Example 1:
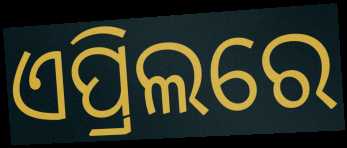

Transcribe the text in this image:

ଏପ୍ରିଲରେ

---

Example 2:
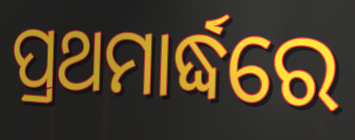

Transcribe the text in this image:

ପ୍ରଥମାର୍ଦ୍ଧରେ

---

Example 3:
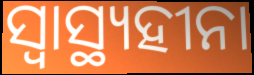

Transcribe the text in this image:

ସ୍ଵାସ୍ଥ୍ୟହୀନା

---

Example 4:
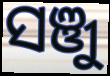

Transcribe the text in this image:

ସଞ୍ଜୁ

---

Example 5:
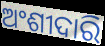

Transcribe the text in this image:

ଅଂଶୀଦାରି